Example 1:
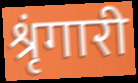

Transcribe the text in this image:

श्रृंगारी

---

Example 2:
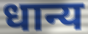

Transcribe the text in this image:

धान्य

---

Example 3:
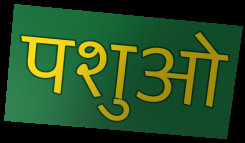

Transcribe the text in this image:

पशुओ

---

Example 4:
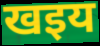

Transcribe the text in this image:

खइय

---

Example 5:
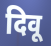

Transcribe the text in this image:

दिवू